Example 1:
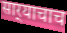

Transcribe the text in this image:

सार्याचाच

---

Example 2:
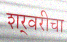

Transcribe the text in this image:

शर्वरीचा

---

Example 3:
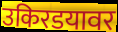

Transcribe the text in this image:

उकिरडयावर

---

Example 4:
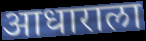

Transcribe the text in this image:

आधाराला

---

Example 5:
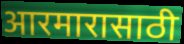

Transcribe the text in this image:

आरमारासाठी